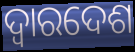
ଦ୍ଵାରଦେଶ